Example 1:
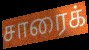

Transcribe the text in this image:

சாரைக்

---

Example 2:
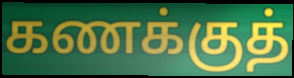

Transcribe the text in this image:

கணக்குத்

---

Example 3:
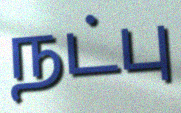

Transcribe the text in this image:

நட்பு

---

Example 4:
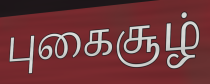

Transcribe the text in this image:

புகைசூழ்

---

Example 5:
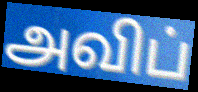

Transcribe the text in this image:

அவிப்